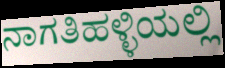
ನಾಗತಿಹಳ್ಳಿಯಲ್ಲಿ